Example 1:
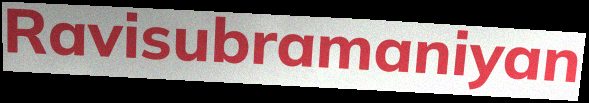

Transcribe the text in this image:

Ravisubramaniyan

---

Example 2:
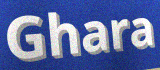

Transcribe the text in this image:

Ghara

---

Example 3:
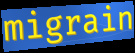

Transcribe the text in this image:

migrain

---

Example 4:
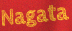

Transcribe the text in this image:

Nagata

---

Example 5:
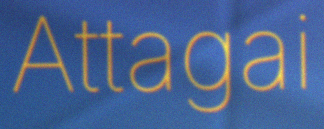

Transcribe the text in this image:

Attagai